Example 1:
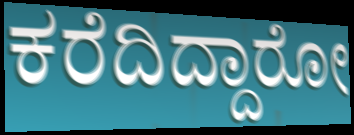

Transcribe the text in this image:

ಕರೆದಿದ್ದಾರೋ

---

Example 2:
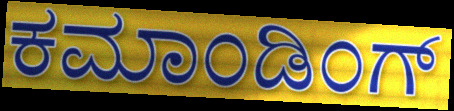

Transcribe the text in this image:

ಕಮಾಂಡಿಂಗ್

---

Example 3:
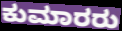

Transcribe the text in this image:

ಕುಮಾರರು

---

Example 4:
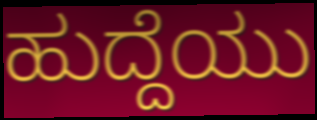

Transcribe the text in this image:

ಹುದ್ದೆಯು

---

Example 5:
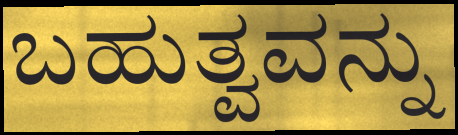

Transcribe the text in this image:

ಬಹುತ್ವವನ್ನು